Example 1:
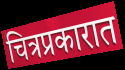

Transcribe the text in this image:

चित्रप्रकारात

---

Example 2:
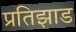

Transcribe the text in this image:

प्रतिझाड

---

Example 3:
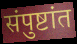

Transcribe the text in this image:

संपुष्टांत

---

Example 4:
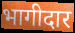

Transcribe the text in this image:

भागीदार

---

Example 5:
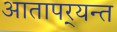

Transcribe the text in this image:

आतापर्यन्त